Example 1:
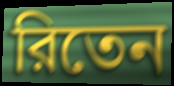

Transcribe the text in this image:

রিতেন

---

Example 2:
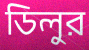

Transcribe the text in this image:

ডিলুর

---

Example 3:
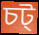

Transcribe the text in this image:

চট্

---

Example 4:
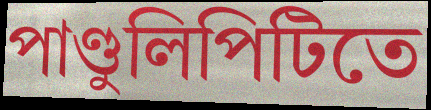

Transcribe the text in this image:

পাণ্ডুলিপিটিতে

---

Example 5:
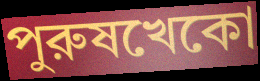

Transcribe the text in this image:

পুরুষখেকো